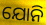
ଯୋନି